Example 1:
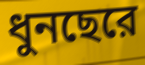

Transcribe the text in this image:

ধুনছেরে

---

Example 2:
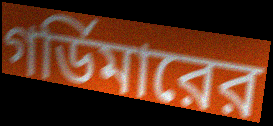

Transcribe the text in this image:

গর্ডিমারের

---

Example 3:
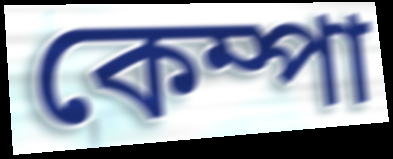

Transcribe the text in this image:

কেম্পা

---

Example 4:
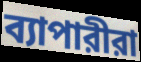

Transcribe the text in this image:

ব্যাপারীরা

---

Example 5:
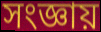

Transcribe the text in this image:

সংজ্ঞায়